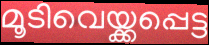
മൂടിവെയ്ക്കപ്പെട്ട